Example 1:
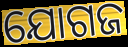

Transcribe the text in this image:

ଯୋଗଜ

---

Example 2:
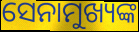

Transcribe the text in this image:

ସେନାମୁଖ୍ୟଙ୍କ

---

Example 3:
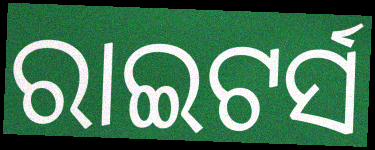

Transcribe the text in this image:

ରାଇଟର୍ସ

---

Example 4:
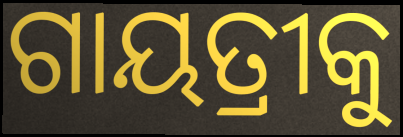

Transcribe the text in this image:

ଗାୟତ୍ରୀକୁ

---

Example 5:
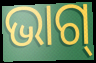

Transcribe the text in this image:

ଭାଗ୍